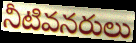
నీటివనరులు